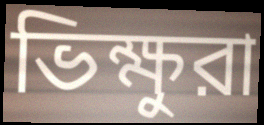
ভিক্ষুরা